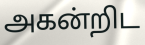
அகன்றிட